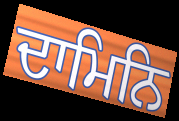
ਦਾਮਿਨਿ